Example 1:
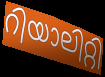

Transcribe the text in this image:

റിയാലിറ്റി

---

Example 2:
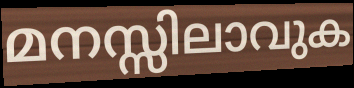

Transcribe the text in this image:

മനസ്സിലാവുക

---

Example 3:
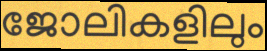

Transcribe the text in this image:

ജോലികളിലും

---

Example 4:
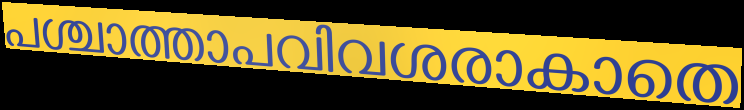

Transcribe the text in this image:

പശ്ചാത്താപവിവശരാകാതെ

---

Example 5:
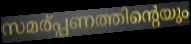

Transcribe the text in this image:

സമര്പ്പണത്തിന്റെയും